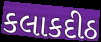
કલાકદીઠ